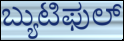
ಬ್ಯುಟಿಫುಲ್